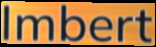
Imbert